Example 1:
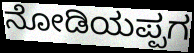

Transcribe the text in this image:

ನೋಡಿಯಪ್ಪಗ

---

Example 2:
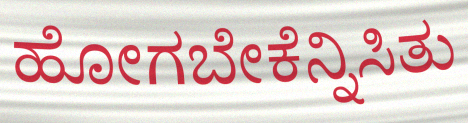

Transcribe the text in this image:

ಹೋಗಬೇಕೆನ್ನಿಸಿತು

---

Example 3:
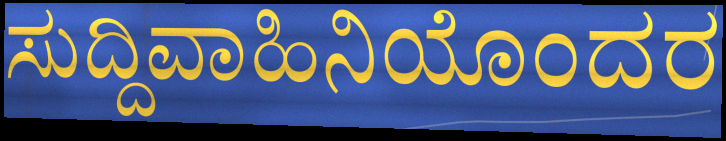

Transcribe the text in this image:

ಸುದ್ದಿವಾಹಿನಿಯೊಂದರ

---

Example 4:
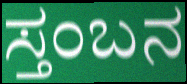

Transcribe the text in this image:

ಸ್ತಂಬನ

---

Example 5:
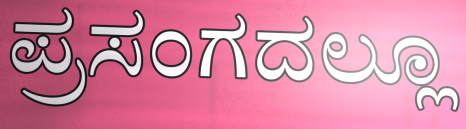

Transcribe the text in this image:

ಪ್ರಸಂಗದಲ್ಲೂ